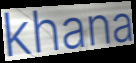
khana